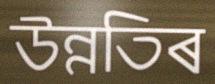
উন্নতিৰ